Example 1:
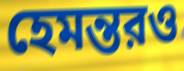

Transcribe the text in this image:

হেমন্তরও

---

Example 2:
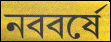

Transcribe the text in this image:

নববর্ষে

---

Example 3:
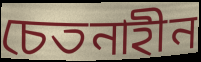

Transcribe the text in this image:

চেতনাহীন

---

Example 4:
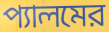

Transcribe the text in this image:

প্যালমের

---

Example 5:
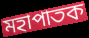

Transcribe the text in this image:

মহাপাতক